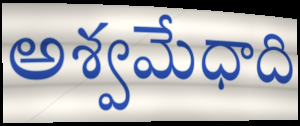
అశ్వమేధాది